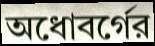
অধোবর্গের